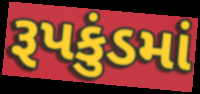
રૂપકુંડમાં